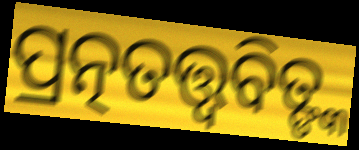
ପ୍ରତ୍ନତତ୍ତ୍ୱବିତ୍ଙ୍କ